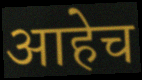
आहेच